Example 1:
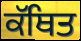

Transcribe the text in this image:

ਕੱਥਿਤ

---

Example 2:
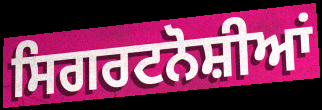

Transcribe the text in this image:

ਸਿਗਰਟਨੋਸ਼ੀਆਂ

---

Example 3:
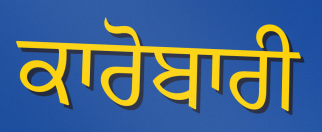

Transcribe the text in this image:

ਕਾਰੋਬਾਰੀ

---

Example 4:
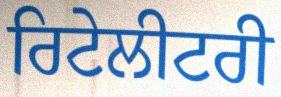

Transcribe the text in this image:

ਰਿਟੇਲੀਟਰੀ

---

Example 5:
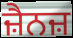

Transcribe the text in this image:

ਜ਼ੈਨਜ਼